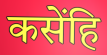
कसेंहि